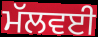
ਮੱਲਵਈ